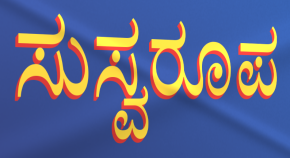
ಸುಸ್ವರೂಪ